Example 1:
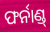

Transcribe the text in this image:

ଫର୍ନାଣ୍ଡ୍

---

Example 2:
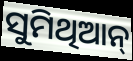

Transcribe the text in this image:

ସୁମିଥିଆନ୍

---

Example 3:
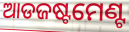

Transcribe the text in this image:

ଆଡଜଷ୍ଟମେଣ୍ଟ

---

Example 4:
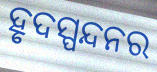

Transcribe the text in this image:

ହୃଦସ୍ପନ୍ଦନର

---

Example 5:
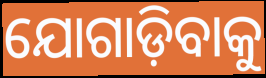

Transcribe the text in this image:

ଯୋଗାଡ଼ିବାକୁ